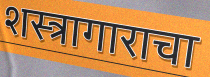
शस्त्रागाराचा